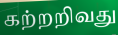
கற்றறிவது